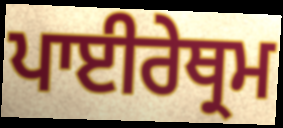
ਪਾਈਰੇਥ੍ਰਮ